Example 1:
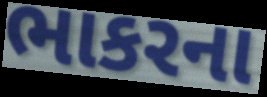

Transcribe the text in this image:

ભાકરના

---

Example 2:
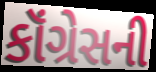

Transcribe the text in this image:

કૉંગ્રેસની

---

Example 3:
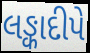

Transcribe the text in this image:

લઙ્કાદીપે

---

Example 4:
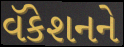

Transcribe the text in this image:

વૅકેશનને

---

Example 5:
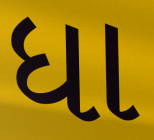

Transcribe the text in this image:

ધા